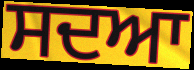
ਸਦਆ